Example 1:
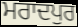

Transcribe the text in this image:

ਮਰਾਦਪੁਰ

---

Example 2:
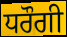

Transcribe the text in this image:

ਧਰੌਗੀ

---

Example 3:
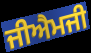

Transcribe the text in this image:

ਜੀਐਮਜੀ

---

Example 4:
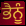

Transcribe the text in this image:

ਭੈਨੂੰ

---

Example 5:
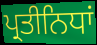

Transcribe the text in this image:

ਪ੍ਰਤੀਨਿਧਾਂ